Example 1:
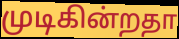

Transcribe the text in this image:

முடிகின்றதா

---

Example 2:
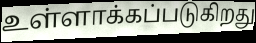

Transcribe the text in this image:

உள்ளாக்கப்படுகிறது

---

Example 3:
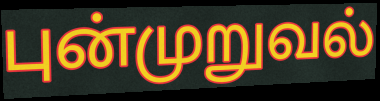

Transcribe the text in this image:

புன்முறுவல்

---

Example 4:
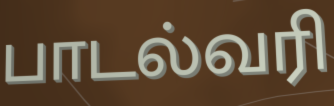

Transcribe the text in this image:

பாடல்வரி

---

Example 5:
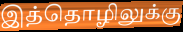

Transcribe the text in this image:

இத்தொழிலுக்கு